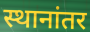
स्थानांतर